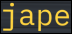
jape